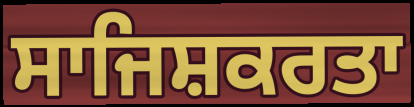
ਸਾਜਿਸ਼ਕਰਤਾ